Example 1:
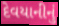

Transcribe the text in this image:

દેવયાનીનું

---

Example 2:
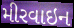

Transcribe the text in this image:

મીરવાઇન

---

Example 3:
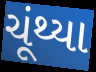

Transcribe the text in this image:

ચૂંથ્યા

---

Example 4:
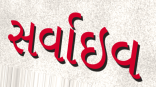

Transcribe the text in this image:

સર્વાઇવ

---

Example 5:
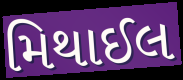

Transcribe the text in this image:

મિથાઈલ